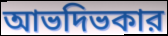
আভদিভকার